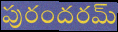
పురందరమ్